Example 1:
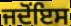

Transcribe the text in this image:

ਜਦੋਂਇਸ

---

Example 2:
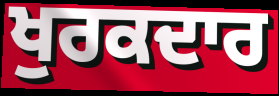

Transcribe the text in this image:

ਖੁਰਕਦਾਰ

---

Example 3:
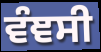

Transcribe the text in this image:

ਵੰਞਸੀ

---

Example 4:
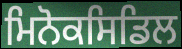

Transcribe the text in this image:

ਮਿਨੋਕਸਿਡਿਲ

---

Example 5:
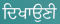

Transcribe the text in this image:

ਦਿਖਾਉਣੀ